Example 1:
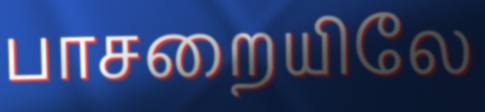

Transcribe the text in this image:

பாசறையிலே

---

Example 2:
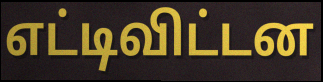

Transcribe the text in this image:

எட்டிவிட்டன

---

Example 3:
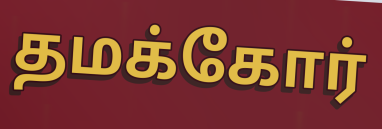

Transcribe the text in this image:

தமக்கோர்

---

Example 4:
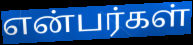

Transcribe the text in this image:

என்பர்கள்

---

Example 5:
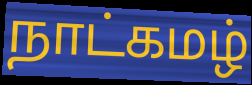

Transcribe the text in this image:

நாட்கமழ்